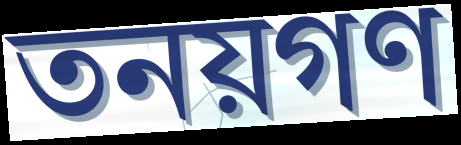
তনয়গণ